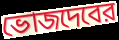
ভোজদেবের